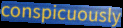
conspicuously